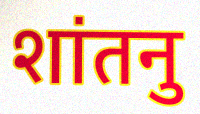
शांतनु